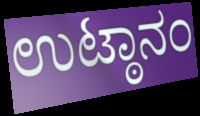
ಉಟ್ಠಾನಂ